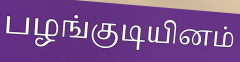
பழங்குடியினம்